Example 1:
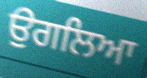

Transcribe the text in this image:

ਉਗਲਿਆ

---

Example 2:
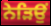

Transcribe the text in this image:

ਨੇੜਿਉਂ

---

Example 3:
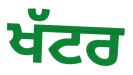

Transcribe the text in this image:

ਖੱਟਰ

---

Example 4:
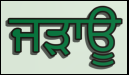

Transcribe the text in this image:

ਜੜਾਊ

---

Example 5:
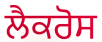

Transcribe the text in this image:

ਲੈਕਰੋਸ